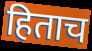
हिताच